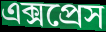
এক্সপ্রেস